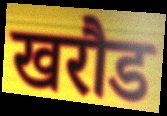
खरौड